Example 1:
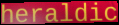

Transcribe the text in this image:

heraldic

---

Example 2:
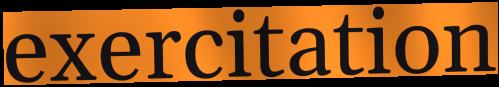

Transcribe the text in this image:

exercitation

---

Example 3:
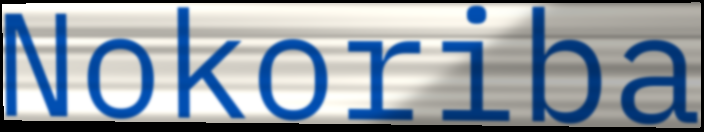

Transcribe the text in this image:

Nokoriba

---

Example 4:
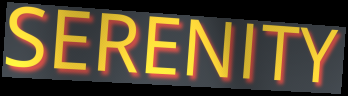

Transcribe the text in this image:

SERENITY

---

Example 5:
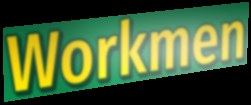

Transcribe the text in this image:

Workmen